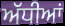
ਅੱਧੀਆਂ